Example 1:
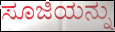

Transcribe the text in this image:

ಸೂಜಿಯನ್ನು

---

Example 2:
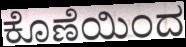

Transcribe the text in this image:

ಕೊಣೆಯಿಂದ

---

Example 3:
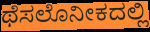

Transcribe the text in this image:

ಥೆಸಲೊನೀಕದಲ್ಲಿ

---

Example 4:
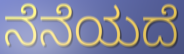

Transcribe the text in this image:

ನೆನೆಯದೆ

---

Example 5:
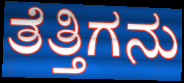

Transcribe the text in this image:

ತೆತ್ತಿಗನು